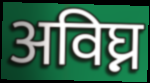
अविघ्न